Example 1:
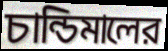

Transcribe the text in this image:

চান্ডিমালের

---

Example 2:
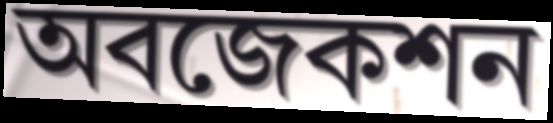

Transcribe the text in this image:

অবজেকশন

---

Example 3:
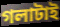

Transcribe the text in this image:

গলাটাই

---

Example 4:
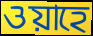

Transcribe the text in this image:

ওয়াহে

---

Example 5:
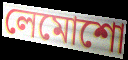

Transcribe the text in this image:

লেমোশো